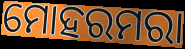
ମୋହରମରା